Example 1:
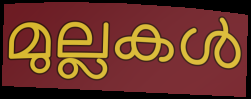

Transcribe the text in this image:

മുല്ലകൾ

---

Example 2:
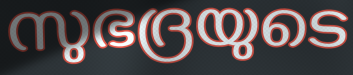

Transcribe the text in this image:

സുഭദ്രയുടെ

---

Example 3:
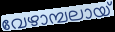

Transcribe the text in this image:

വേഴാമ്പലായ്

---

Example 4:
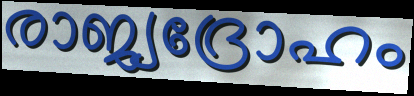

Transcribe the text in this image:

രാജ്യദ്രോഹം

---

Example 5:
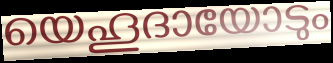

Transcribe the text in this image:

യെഹൂദായോടും